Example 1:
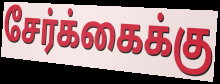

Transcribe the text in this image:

சேர்க்கைக்கு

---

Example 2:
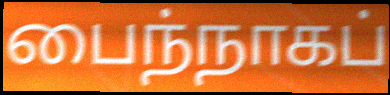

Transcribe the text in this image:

பைந்நாகப்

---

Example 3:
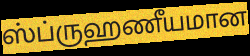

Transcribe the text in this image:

ஸ்ப்ருஹணீயமான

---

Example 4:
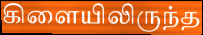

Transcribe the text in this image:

கிளையிலிருந்த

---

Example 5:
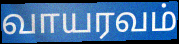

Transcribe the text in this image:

வாயரவம்